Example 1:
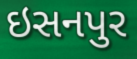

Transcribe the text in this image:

ઇસનપુર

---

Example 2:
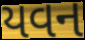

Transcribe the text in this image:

યવન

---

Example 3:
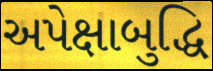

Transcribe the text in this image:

અપેક્ષાબુદ્ધિ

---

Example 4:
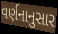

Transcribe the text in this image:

વર્ણનાનુસાર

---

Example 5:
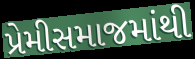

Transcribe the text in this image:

પ્રેમીસમાજમાંથી